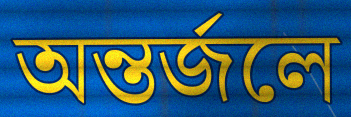
অন্তর্জলে